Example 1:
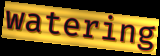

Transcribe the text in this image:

watering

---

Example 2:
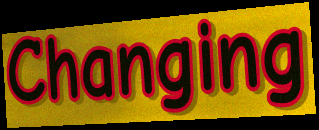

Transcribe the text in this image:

Changing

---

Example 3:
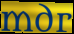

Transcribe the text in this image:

mdr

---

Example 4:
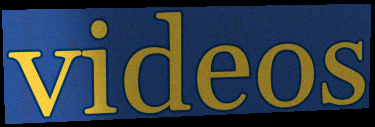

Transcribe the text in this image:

videos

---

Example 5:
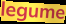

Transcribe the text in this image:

legume